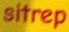
sitrep